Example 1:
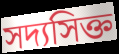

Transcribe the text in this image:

সদ্যসিক্ত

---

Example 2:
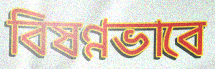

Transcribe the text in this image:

বিষণ্নভাবে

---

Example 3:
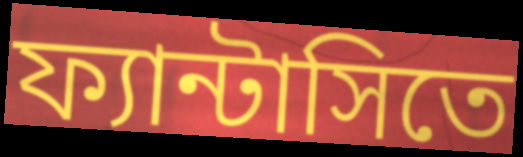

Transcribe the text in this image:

ফ্যান্টাসিতে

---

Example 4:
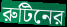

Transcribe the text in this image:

রুটিনের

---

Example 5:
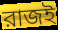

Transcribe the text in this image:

রাজই